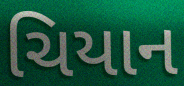
ચિયાન